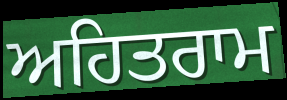
ਅਹਿਤਰਾਮ